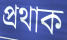
প্ৰথাক